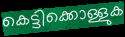
കെട്ടിക്കൊള്ളുക